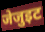
जेजुइट